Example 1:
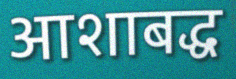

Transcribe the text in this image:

आशाबद्ध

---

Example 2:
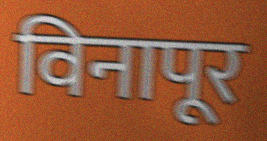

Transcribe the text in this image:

विनापूर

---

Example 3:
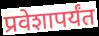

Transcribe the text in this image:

प्रवेशापर्यंत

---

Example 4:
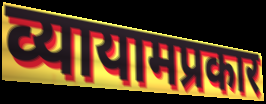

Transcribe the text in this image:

व्यायामप्रकार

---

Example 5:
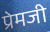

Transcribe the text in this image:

प्रेमजी